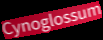
Cynoglossum